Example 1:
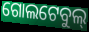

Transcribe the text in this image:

ଗୋଲଟେବୁଲ୍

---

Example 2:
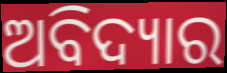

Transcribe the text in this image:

ଅବିଦ୍ୟାର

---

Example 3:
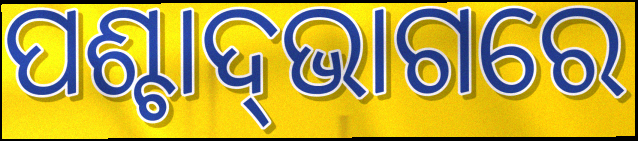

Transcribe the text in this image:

ପଶ୍ଚାଦ୍‍ଭାଗରେ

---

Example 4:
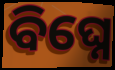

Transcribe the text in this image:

ବିଘ୍ନେ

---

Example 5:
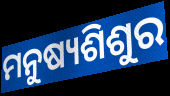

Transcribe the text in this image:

ମନୁଷ୍ୟଶିଶୁର